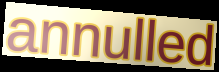
annulled